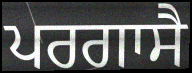
ਪਰਗਾਸੈ